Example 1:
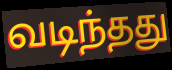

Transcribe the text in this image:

வடிந்தது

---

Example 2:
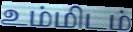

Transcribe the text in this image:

உம்மிடம்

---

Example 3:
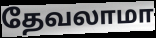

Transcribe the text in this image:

தேவலாமா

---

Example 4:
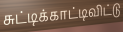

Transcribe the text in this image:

சுட்டிக்காட்டிவிட்டு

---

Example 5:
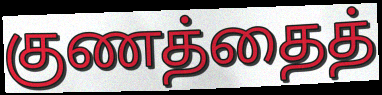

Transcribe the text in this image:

குணத்தைத்